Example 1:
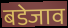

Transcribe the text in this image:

बडेजाव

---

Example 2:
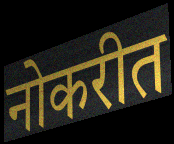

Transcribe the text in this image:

नोकरीत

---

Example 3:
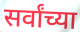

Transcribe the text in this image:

सर्वांच्या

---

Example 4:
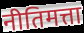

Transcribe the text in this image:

नीतिमत्ता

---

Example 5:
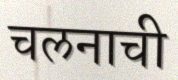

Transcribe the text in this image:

चलनाची